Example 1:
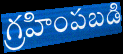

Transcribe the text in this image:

గ్రహింపబడి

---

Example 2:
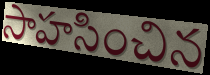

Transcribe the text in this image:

సాహసించిన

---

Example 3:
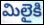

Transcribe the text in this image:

మిలైకి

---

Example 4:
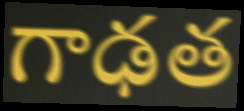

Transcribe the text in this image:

గాఢత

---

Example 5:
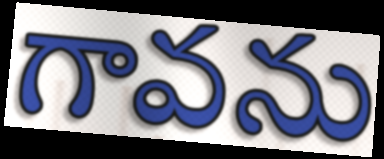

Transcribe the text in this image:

గావను